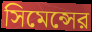
সিমেন্সের